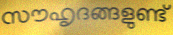
സൗഹൃദങ്ങളുണ്ട്